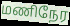
மணிநேர